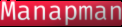
Manapman